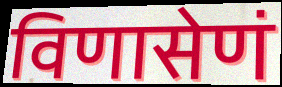
विणासेणं